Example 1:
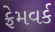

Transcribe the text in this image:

ફ્રેમવર્ક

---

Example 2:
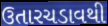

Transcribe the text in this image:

ઉતારચડાવથી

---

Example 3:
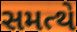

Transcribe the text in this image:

સમત્થે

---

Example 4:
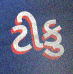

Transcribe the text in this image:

ટીકુ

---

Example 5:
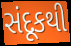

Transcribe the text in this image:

સંદૂકથી